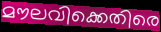
മൗലവിക്കെതിരെ